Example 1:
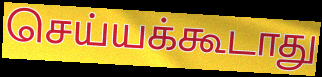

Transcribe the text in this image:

செய்யக்கூடாது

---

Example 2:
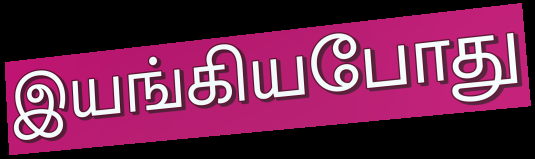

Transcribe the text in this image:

இயங்கியபோது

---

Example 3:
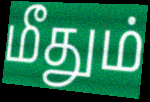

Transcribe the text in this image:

மீதும்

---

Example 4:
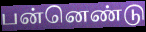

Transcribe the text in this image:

பன்னெண்டு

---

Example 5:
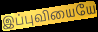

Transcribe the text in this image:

இப்புவியையே